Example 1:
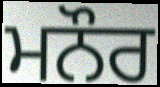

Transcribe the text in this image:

ਮਨੌਰ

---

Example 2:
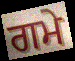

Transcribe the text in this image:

ਗਮੇ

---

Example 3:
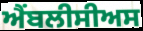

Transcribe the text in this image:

ਐਂਬਲੀਸੀਅਸ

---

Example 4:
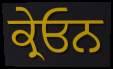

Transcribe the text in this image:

ਕ੍ਰੇਓਨ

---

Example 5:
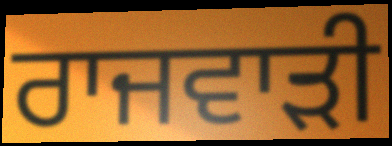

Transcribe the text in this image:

ਰਾਜਵਾੜੀ